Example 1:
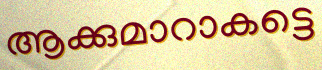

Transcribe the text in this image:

ആക്കുമാറാകട്ടെ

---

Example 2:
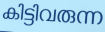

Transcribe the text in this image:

കിട്ടിവരുന്ന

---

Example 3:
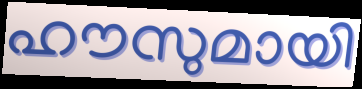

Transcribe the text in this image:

ഹൗസുമായി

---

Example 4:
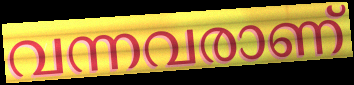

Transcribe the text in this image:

വന്നവരാണ്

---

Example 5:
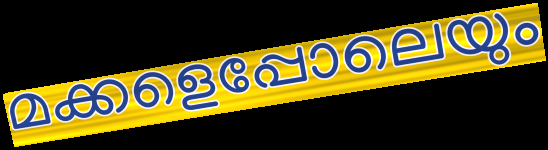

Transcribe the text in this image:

മക്കളെപ്പോലെയും